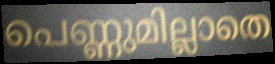
പെണ്ണുമില്ലാതെ